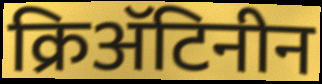
क्रिॲटिनीन